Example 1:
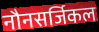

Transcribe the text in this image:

नौनसर्जिकल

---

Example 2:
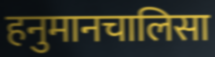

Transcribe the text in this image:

हनुमानचालिसा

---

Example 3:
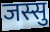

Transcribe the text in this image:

जस्सु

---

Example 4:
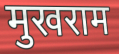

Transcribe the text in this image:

मुखराम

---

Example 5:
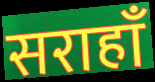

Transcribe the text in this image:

सराहाँ